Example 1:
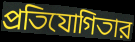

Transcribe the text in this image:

প্রতিযোগিতার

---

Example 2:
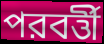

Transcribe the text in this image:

পরবর্ত্তী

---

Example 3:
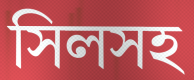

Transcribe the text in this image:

সিলসহ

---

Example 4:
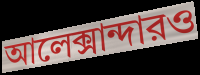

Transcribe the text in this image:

আলেক্সান্দারও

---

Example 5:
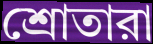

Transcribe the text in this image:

শ্রোতারা